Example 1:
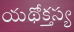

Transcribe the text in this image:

యథోక్తస్య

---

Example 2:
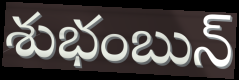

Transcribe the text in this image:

శుభంబున్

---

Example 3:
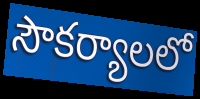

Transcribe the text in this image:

సౌకర్యాలలో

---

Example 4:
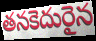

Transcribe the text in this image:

తనకెదురైన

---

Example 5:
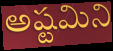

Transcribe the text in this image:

అష్టమిని